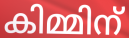
കിമ്മിന്